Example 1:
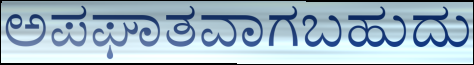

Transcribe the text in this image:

ಅಪಘಾತವಾಗಬಹುದು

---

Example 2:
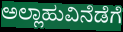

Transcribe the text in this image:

ಅಲ್ಲಾಹುವಿನೆಡೆಗೆ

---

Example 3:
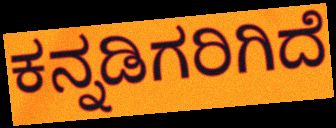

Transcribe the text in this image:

ಕನ್ನಡಿಗರಿಗಿದೆ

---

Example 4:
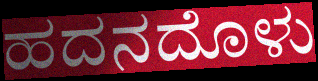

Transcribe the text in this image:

ಹದನದೊಳು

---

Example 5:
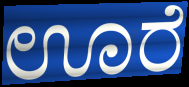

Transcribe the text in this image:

ಊರೆ